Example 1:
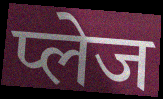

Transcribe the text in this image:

प्‍लेज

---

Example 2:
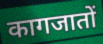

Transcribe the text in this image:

कागजातों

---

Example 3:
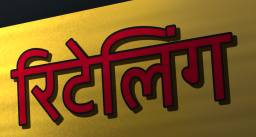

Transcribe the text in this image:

रिटेलिंग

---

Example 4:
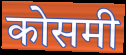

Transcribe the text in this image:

कोसमी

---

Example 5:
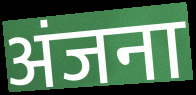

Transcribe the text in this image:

अंजना